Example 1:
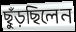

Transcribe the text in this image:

ছুঁড়ছিলেন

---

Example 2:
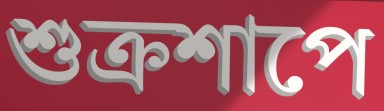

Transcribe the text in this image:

শুক্রশাপে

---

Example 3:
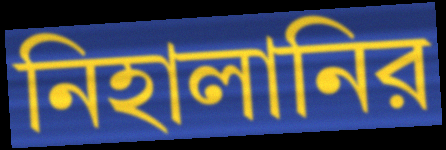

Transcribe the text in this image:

নিহালানির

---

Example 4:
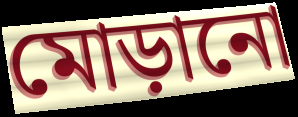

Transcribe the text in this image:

মোড়ানো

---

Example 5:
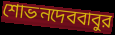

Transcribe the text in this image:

শোভনদেববাবুর